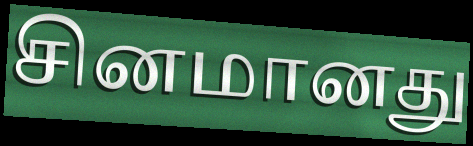
சினமானது